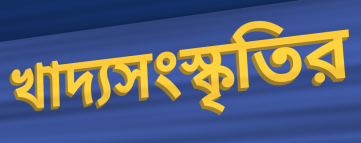
খাদ্যসংস্কৃতির